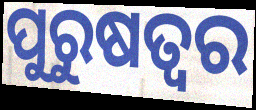
ପୁରୁଷତ୍ଵର